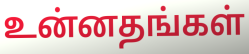
உன்னதங்கள்